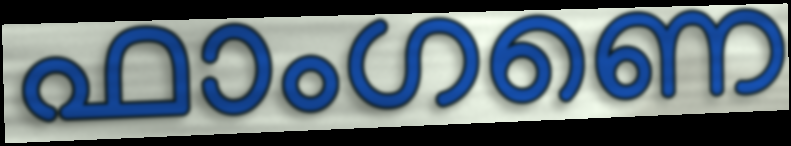
ഫാംഗണെ